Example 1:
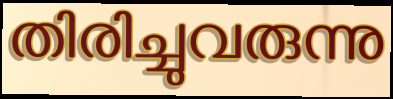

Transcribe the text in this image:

തിരിച്ചുവരുന്നു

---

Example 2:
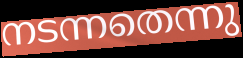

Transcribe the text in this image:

നടന്നതെന്നു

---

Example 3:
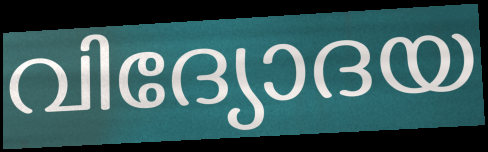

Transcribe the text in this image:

വിദ്യോദയ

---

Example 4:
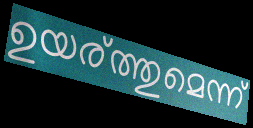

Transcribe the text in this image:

ഉയര്ത്തുമെന്ന്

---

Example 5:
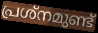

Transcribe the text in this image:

പ്രശ്നമുണ്ട്